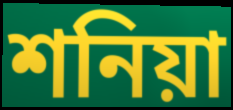
শনিয়া